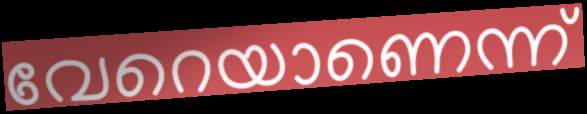
വേറെയാണെന്ന്